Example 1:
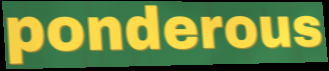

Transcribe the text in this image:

ponderous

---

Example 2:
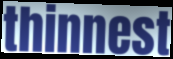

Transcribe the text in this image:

thinnest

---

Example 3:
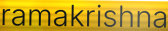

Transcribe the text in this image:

ramakrishna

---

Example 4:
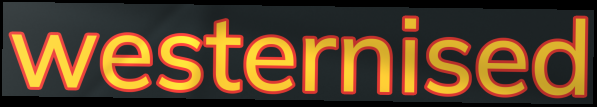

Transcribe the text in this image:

westernised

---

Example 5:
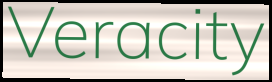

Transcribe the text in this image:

Veracity